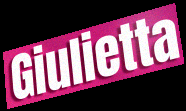
Giulietta